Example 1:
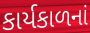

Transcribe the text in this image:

કાર્યકાળનાં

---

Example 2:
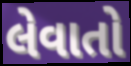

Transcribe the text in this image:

લેવાતો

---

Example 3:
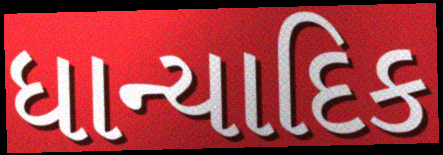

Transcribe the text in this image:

ધાન્યાદિક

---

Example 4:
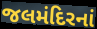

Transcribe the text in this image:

જલમંદિરનાં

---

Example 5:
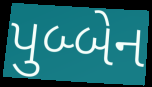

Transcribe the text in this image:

પુબ્બેન